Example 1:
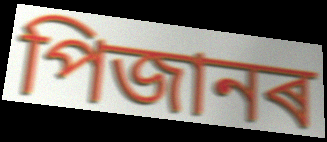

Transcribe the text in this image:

পিজানৰ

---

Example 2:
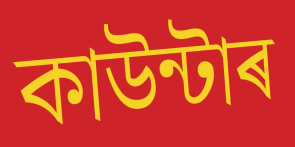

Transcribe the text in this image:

কাউন্টাৰ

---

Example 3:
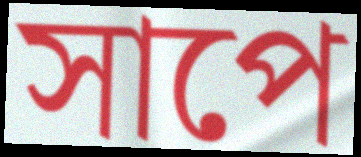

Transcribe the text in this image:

সাপে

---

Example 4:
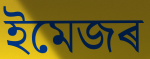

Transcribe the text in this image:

ইমেজৰ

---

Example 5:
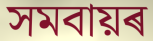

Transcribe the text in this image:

সমবায়ৰ